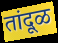
तांदूळ